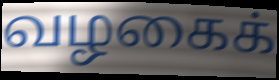
வழகைக்